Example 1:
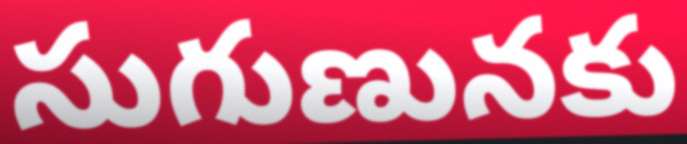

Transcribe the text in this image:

సుగుణునకు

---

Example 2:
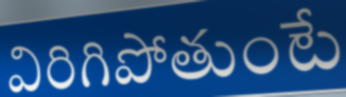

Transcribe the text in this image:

విరిగిపోతుంటే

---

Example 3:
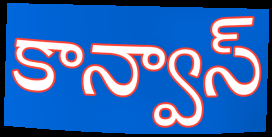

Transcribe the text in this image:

కాన్వాస్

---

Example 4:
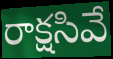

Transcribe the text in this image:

రాక్షసివే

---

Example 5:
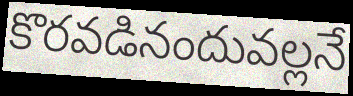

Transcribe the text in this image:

కొరవడినందువల్లనే